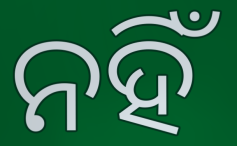
ନହିଁ